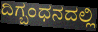
ದಿಗ್ಬಂಧನದಲ್ಲಿ